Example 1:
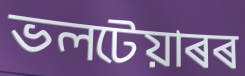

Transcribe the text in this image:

ভলটেয়াৰৰ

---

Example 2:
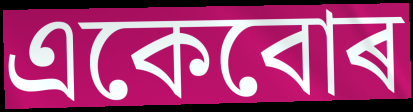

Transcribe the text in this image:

একেবোৰ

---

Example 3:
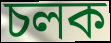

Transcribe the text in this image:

চলক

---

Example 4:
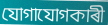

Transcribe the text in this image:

যোগাযোগকাৰী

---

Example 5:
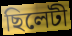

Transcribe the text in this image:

ছিলেটী